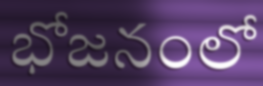
భోజనంలో